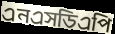
এনএসডিএপি